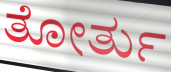
ತೋರ್ತು